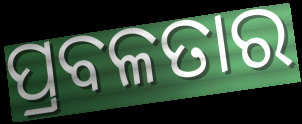
ପ୍ରବଳତାର